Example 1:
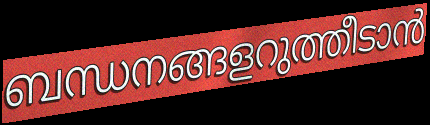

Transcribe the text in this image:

ബന്ധനങ്ങളറുത്തീടാൻ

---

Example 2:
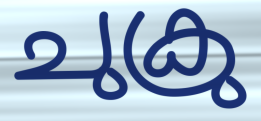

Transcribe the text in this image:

ചുക്രു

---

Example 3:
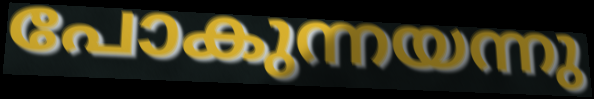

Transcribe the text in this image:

പോകുന്നയന്നു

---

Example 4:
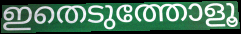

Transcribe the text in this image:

ഇതെടുത്തോളൂ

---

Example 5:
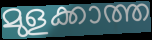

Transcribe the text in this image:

മുളക്കാത്ത